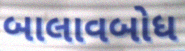
બાલાવબોધ